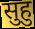
सुहु